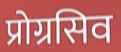
प्रोग्रसिव